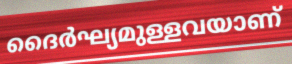
ദൈർഘ്യമുള്ളവയാണ്